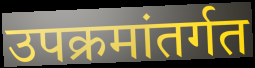
उपक्रमांतर्गत